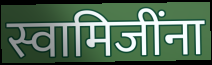
स्वामिजींना